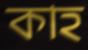
কাহ